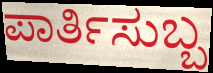
ಪಾರ್ತಿಸುಬ್ಬ